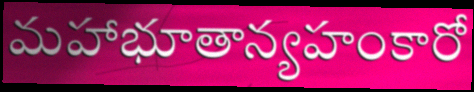
మహాభూతాన్యహంకారో